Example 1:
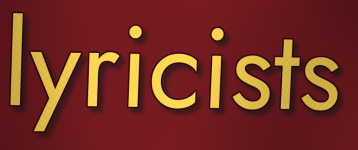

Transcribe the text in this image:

lyricists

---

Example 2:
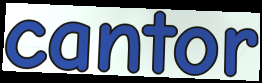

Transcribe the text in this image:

cantor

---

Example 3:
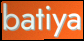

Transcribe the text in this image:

batiya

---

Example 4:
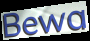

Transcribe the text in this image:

Bewa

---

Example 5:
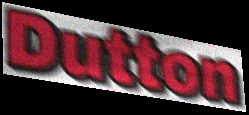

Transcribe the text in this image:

Dutton